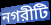
নগরীটি